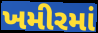
ખમીરમાં